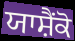
ਯਾਸ਼ੈਂਕੋ